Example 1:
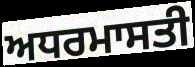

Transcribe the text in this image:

ਅਧਰਮਾਸਤੀ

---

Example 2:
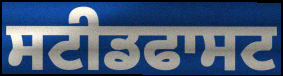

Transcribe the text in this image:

ਸਟੀਡਫਾਸਟ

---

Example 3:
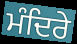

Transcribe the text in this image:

ਮੰਦਿਰੇ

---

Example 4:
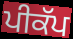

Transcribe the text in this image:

ਪੀਕੱਪ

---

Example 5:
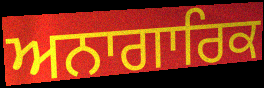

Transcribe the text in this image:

ਅਨਾਗਾਰਿਕ